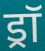
ड्रॉ